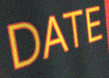
DATE